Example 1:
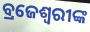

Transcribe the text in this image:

ବ୍ରଜେଶ୍ୱରୀଙ୍କ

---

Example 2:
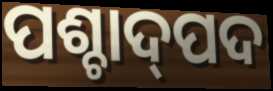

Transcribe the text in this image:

ପଶ୍ଚାଦ୍‍ପଦ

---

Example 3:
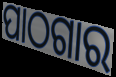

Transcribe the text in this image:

ପାଠଗାର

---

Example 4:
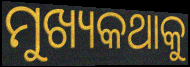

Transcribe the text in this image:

ମୁଖ୍ୟକଥାକୁ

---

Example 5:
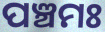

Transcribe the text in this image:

ପଞ୍ଚମଃ